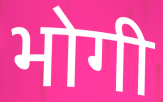
भोगी